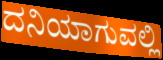
ದನಿಯಾಗುವಲ್ಲಿ